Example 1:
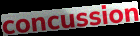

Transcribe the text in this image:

concussion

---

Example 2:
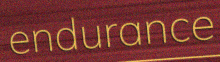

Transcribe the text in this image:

endurance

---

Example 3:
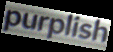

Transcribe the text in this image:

purplish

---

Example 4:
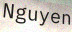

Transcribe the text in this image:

Nguyen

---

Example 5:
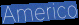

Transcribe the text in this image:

Americo